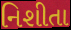
નિશીતા